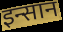
इन्सान